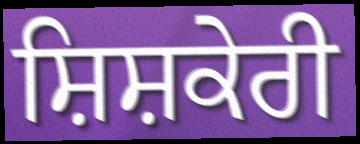
ਸ਼ਿਸ਼ਕੇਰੀ